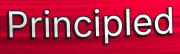
Principled